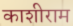
काशीराम